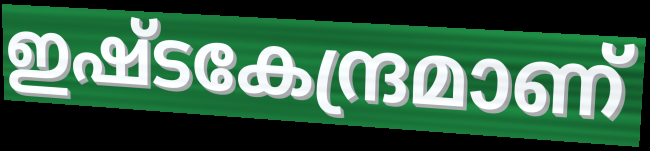
ഇഷ്ടകേന്ദ്രമാണ്